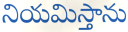
నియమిస్తాను